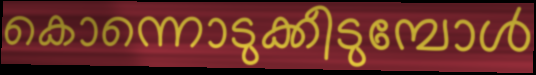
കൊന്നൊടുക്കീടുമ്പോൾ